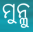
ମୁନ୍ଳୁ